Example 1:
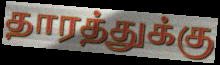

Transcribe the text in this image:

தாரத்துக்கு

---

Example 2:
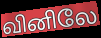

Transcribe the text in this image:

வினிலே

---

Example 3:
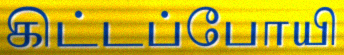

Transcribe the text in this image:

கிட்டப்போயி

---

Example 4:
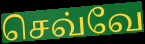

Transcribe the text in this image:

செவ்வே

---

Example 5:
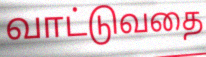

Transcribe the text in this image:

வாட்டுவதை